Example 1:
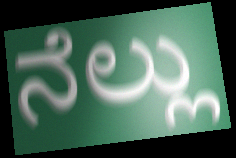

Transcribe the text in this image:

ನೆಲ್ಲು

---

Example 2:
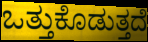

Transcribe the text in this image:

ಒತ್ತುಕೊಡುತ್ತದೆ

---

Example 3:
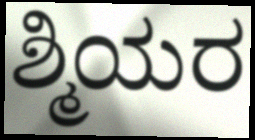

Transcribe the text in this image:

ಶ್ಮಿಯರ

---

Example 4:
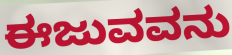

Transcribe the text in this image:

ಈಜುವವನು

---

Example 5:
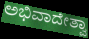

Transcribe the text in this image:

ಅಭಿವಾದೇತ್ವಾ